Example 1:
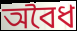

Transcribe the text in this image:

অবৈধ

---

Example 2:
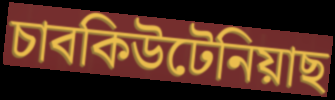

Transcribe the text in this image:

চাবকিউটেনিয়াছ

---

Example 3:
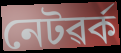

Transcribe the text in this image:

নেটৱৰ্ক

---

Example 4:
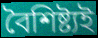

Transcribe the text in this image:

বৈশিষ্ট্যই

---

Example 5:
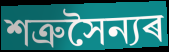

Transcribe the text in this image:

শত্ৰুসৈন্যৰ